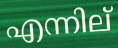
എന്നില്